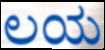
ಲಯ